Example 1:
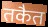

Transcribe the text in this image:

तकैत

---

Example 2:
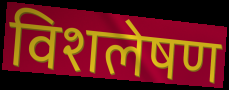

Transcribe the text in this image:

विशलेषण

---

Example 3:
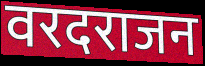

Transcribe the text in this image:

वरदराजन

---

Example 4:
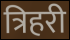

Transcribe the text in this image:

त्रिहरी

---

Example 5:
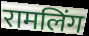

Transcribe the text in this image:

रामलिंग